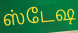
ஸ்டேஷ